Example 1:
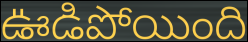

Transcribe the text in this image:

ఊడిపోయింది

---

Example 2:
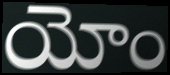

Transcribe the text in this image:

యోం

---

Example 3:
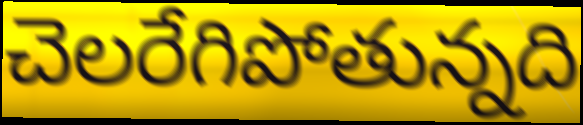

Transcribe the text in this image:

చెలరేగిపోతున్నది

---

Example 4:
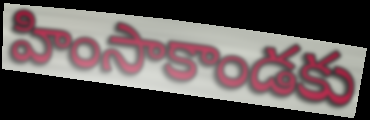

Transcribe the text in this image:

హింసాకాండకు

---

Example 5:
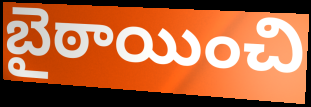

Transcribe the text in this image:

బైఠాయించి